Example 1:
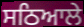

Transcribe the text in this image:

ਸਠਿਆਲੇ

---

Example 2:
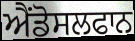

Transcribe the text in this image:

ਐਂਡੋਸਲਫਾਨ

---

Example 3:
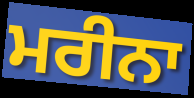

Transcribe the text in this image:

ਮਰੀਨਾ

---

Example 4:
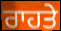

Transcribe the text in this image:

ਰਾਹਤੇ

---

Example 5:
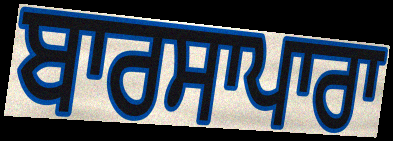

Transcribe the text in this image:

ਬਾਰਸਾਪਾਰਾ